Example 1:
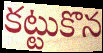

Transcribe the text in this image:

కట్టుకొన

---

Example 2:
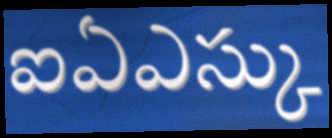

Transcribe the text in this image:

ఐఏఎస్కు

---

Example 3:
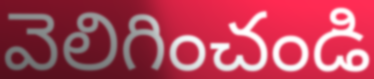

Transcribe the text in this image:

వెలిగించండి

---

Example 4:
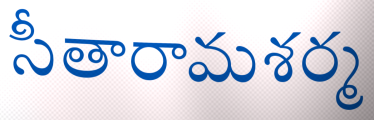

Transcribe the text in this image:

సీతారామశర్మ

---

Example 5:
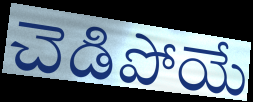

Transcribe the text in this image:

చెడిపోయే